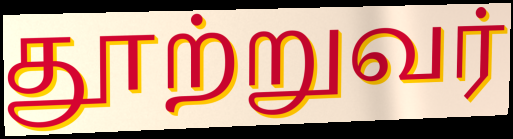
தூற்றுவர்